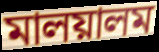
মালয়ালম